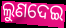
ଲୁଣଦେଇ